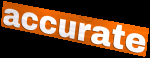
accurate